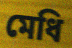
মেধি